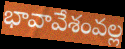
భావావేశంవల్ల